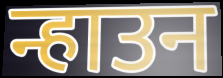
न्हाउन